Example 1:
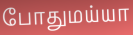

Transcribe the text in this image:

போதுமய்யா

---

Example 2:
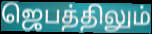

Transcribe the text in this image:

ஜெபத்திலும்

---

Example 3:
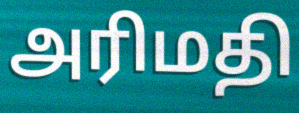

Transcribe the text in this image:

அரிமதி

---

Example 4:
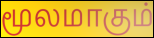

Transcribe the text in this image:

மூலமாகும்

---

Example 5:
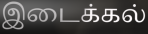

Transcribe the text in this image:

இடைக்கல்